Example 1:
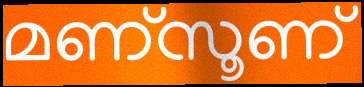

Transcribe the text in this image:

മണ്സൂണ്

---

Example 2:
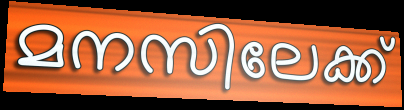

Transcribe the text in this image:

മനസിലേക്ക്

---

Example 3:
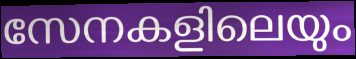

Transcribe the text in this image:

സേനകളിലെയും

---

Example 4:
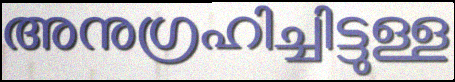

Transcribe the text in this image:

അനുഗ്രഹിച്ചിട്ടുള്ള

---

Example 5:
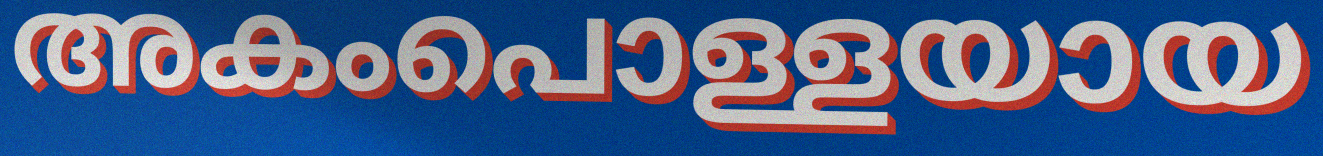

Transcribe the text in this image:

അകംപൊള്ളയായ